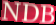
NDB